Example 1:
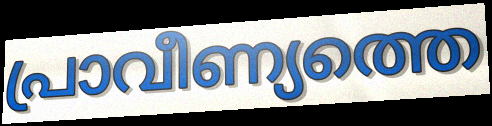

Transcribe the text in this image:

പ്രാവീണ്യത്തെ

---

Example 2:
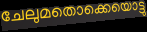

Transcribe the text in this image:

ചേലുമതൊക്കെയൊട്ടു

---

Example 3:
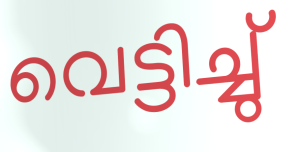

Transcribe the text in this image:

വെട്ടിച്ചു്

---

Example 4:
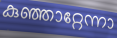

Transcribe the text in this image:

കുഞ്ഞാറ്റേന്നാ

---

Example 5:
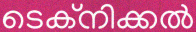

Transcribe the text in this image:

ടെക്നിക്കൽ